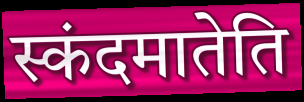
स्कंदमातेति